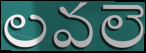
లవలె